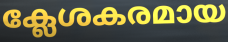
ക്ലേശകരമായ